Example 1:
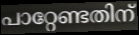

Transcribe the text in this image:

പാറ്റേണ്ടതിന്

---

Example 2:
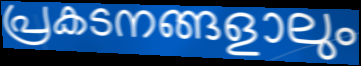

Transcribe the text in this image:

പ്രകടനങ്ങളാലും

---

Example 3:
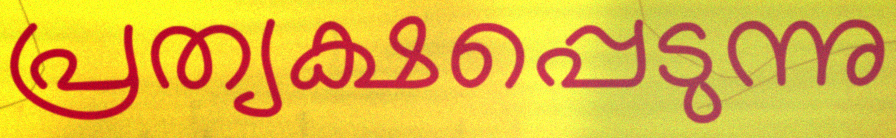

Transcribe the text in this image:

പ്രത്യക്ഷപ്പെടുന്നു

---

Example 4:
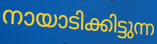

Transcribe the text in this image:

നായാടിക്കിട്ടുന്ന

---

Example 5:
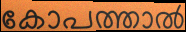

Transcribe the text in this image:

കോപത്താൽ